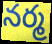
నర్మ